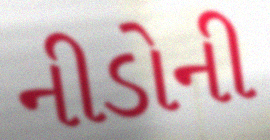
નીડોની